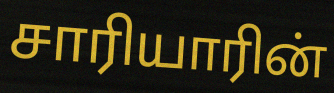
சாரியாரின்